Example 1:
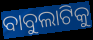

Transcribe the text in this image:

ବାବୁଲାଟିକୁ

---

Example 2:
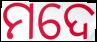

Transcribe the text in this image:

ମଦେ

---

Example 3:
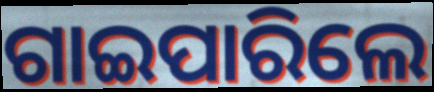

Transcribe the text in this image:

ଗାଇପାରିଲେ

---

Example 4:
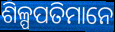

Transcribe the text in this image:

ଶିଳ୍ପପତିମାନେ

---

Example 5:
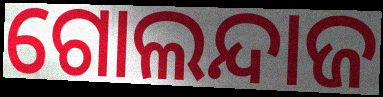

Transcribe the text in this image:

ଗୋଲନ୍ଦାଜ